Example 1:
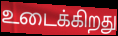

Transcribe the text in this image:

உடைக்கிறது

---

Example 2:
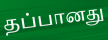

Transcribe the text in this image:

தப்பானது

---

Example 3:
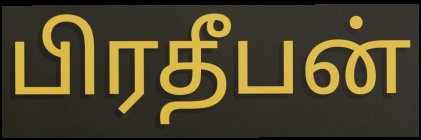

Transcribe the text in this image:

பிரதீபன்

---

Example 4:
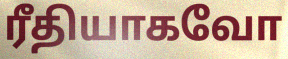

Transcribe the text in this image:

ரீதியாகவோ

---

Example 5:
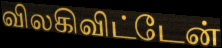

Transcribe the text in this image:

விலகிவிட்டேன்